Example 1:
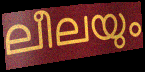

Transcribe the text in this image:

ലീലയും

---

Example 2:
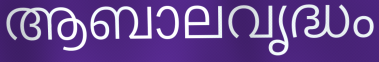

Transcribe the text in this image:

ആബാലവൃദ്ധം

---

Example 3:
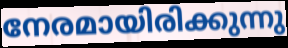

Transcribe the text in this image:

നേരമായിരിക്കുന്നു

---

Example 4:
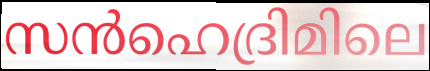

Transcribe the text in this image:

സൻഹെദ്രിമിലെ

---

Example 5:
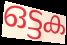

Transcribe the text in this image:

ഒട്ടക